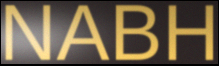
NABH